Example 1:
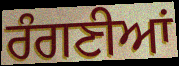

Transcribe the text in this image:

ਰੰਗਣੀਆਂ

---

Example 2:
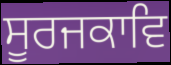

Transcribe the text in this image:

ਸੂਰਜਕਾਵਿ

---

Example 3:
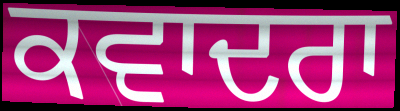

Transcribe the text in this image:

ਕਵਾਦਰਾ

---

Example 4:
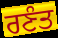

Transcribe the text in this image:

ਰਣੰਤ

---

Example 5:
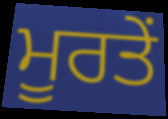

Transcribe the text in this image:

ਮੂਰਤੇਂ